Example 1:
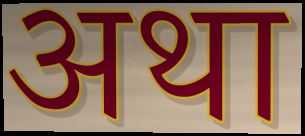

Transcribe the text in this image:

अथा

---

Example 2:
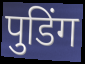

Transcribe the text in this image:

पुडिंग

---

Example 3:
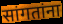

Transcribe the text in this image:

सांगतांना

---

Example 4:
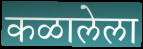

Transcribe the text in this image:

कळालेला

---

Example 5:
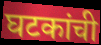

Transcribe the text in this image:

घटकांची